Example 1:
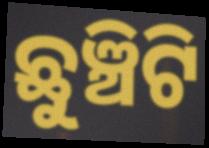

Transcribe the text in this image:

ଛୁଞ୍ଚିଟି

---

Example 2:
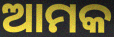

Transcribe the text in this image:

ଆମକ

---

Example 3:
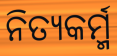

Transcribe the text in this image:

ନିତ୍ୟକର୍ମ୍ମ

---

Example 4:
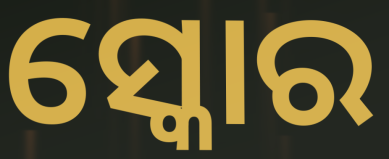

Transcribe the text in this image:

ସ୍କୋର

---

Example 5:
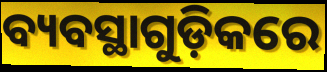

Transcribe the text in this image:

ବ୍ୟବସ୍ଥାଗୁଡ଼ିକରେ